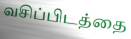
வசிப்பிடத்தை